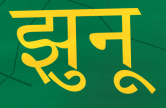
झुनू